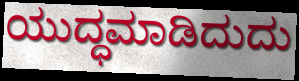
ಯುದ್ಧಮಾಡಿದುದು